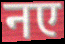
नए